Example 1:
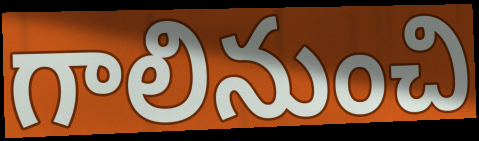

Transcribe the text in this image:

గాలినుంచి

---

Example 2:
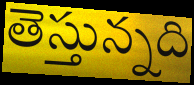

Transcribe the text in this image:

తెస్తున్నది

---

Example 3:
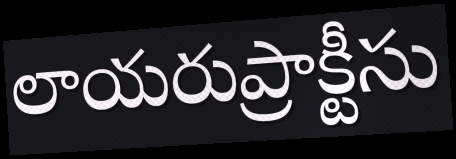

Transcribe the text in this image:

లాయరుప్రాక్టీసు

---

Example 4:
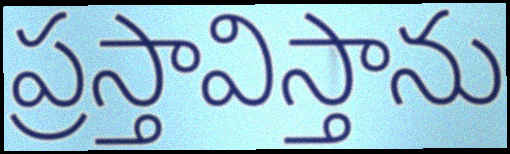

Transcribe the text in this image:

ప్రస్తావిస్తాను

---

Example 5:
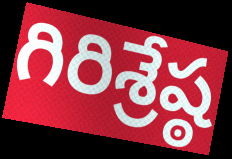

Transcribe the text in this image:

గిరిశ్రేష్ఠ